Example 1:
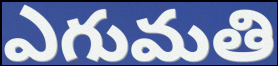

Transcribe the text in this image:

ఎగుమతి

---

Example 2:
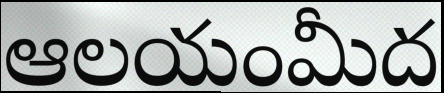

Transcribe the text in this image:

ఆలయంమీద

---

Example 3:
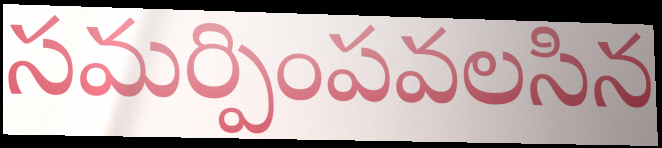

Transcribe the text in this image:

సమర్పింపవలసిన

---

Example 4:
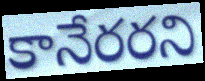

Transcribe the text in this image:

కానేరరని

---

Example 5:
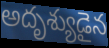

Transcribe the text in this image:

అదృశ్యుడైన